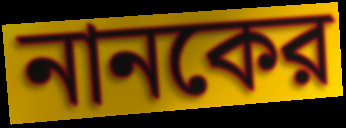
নানকের